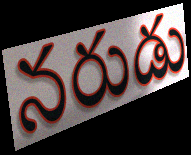
నరుడు